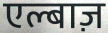
एल्बाज़